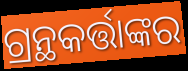
ଗ୍ରନ୍ଥକର୍ତ୍ତାଙ୍କର